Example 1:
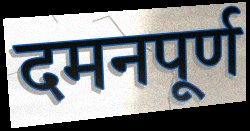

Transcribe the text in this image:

दमनपूर्ण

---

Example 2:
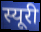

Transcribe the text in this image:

स्यूरी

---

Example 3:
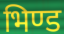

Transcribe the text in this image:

भिण्‍ड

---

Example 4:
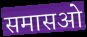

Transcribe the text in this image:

समासओ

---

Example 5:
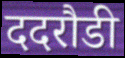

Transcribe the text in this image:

ददरौडी